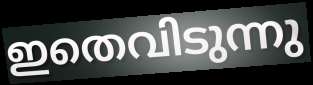
ഇതെവിടുന്നു